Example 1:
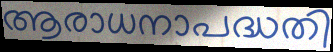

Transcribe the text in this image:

ആരാധനാപദ്ധതി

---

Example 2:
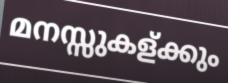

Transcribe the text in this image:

മനസ്സുകള്ക്കും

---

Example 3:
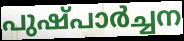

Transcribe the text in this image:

പുഷ്പാർച്ചന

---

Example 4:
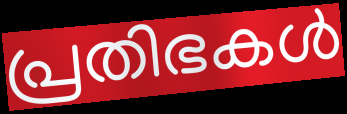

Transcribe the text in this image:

പ്രതിഭകൾ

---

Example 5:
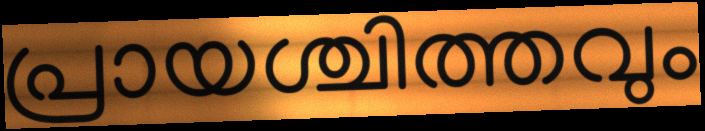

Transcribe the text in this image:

പ്രായശ്ചിത്തവും